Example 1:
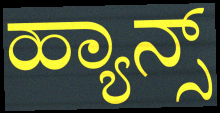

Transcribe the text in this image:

ಹ್ಯಾನ್ಸ್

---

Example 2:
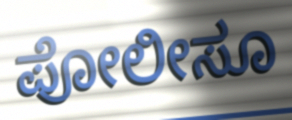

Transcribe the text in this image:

ಪೋಲೀಸೂ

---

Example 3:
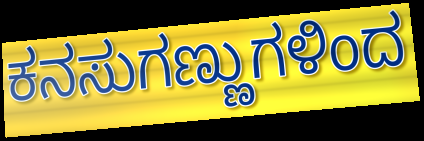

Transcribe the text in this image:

ಕನಸುಗಣ್ಣುಗಳಿಂದ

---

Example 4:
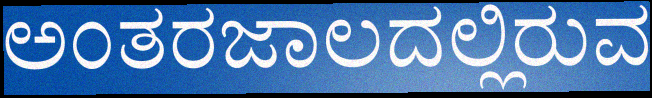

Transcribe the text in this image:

ಅಂತರಜಾಲದಲ್ಲಿರುವ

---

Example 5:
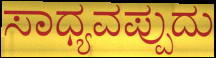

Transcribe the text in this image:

ಸಾಧ್ಯವಪ್ಪುದು